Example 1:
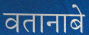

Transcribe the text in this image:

वतानाबे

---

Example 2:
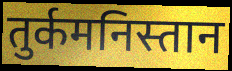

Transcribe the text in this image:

तुर्कमनिस्तान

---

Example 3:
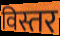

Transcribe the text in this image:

विस्तर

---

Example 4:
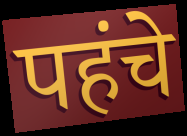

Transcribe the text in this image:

पहंचे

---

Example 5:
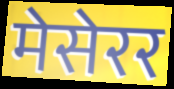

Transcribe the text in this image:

मेसेरर